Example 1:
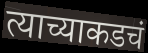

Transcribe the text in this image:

त्याच्याकडचं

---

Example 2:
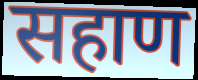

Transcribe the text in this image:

सहाण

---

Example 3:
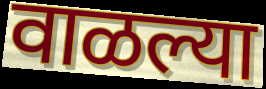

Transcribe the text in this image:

वाळल्या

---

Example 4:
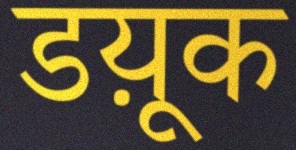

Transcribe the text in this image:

डय़ूक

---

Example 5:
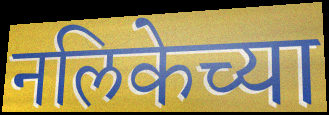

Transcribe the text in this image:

नलिकेच्या